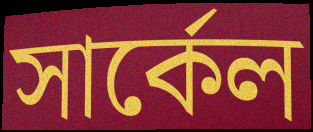
সার্কেল